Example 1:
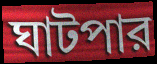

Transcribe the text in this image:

ঘাটপার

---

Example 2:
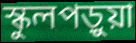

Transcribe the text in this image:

স্কুলপড়ুয়া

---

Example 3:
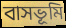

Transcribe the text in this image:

বাসভূমি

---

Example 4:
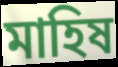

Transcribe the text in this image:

মাহিষ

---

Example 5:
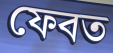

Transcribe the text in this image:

ফেবত